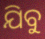
ଯିବୁ